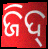
ଜିଦ୍